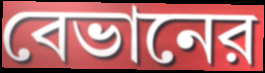
বেভানের